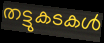
തട്ടുകടകൾ